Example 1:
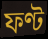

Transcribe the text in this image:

ফণ্ট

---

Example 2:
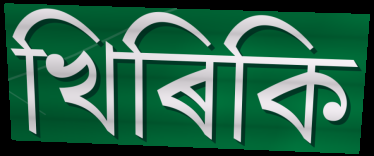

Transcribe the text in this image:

খিৰিকি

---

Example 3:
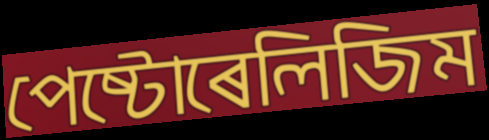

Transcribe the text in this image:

পেষ্টোৰেলিজিম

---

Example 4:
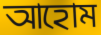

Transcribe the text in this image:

আহোম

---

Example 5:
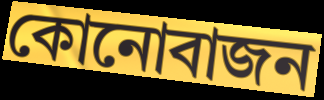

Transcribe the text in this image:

কোনোবাজন